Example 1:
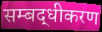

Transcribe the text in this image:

सम्बद्धीकरण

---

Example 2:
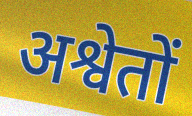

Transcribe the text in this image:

अश्वेतों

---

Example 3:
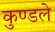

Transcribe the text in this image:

कुण्डले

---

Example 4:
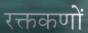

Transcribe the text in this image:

रक्तकणों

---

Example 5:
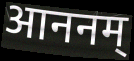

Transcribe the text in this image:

आननम्